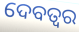
ଦେବତ୍ଵର